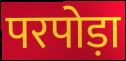
परपोड़ा